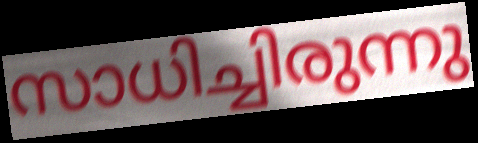
സാധിച്ചിരുന്നു